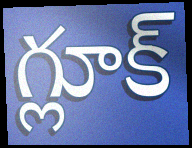
గ్లూక్